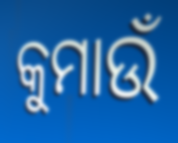
କୁମାଉଁ